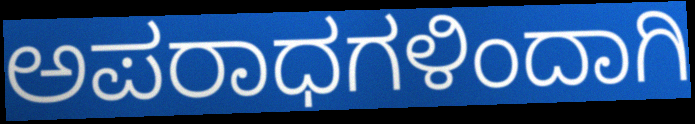
ಅಪರಾಧಗಳಿಂದಾಗಿ